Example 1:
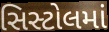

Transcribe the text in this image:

સિસ્ટોલમાં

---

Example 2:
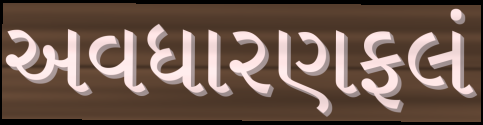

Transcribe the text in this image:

અવધારણફલં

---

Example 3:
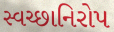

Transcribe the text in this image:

સ્વચ્છાનિરોપ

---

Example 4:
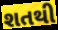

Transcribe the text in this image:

શતથી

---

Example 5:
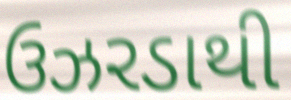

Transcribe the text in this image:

ઉઝરડાથી